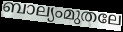
ബാല്യംമുതലേ